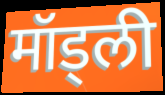
मॉड्ली